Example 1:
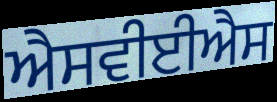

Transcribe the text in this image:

ਐਸਵੀਈਐਸ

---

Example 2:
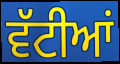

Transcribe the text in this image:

ਵੱਟੀਆਂ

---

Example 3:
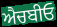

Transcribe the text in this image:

ਐਚਬੀਓ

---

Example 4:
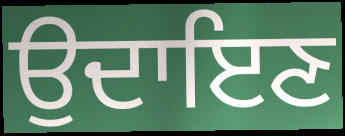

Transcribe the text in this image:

ਉਦਾਇਣ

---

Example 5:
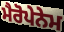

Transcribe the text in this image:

ਮੈਰੋਪੇਨੇਮ